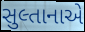
સુલ્તાનાએ